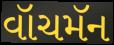
વૉચમૅન